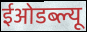
ईओडब्ल्यू